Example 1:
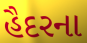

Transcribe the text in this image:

હૈદરના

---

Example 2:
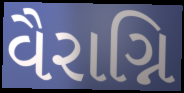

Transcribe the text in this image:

વૈરાગ્નિ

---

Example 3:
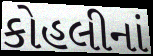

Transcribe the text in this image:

કોહલીનાં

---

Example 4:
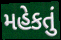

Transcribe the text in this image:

મહેકતું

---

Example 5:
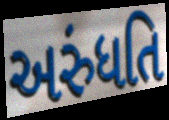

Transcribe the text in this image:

અરુંધતિ